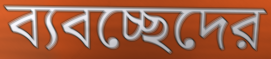
ব্যবচ্ছেদের